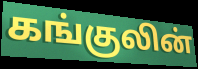
கங்குலின்